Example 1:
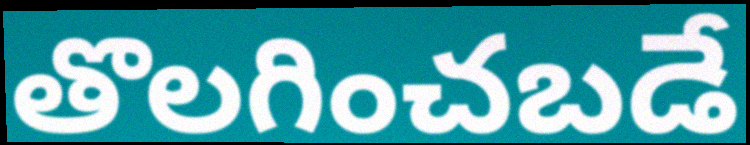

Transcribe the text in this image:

తొలగించబడే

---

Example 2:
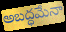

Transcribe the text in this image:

అబద్ధమేనా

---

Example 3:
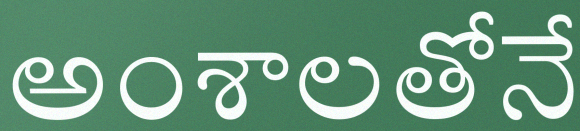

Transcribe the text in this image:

అంశాలతోనే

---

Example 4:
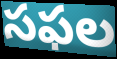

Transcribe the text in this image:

సఫల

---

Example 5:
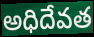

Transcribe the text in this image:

అధిదేవత